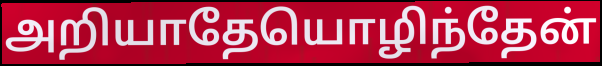
அறியாதேயொழிந்தேன்